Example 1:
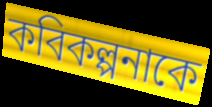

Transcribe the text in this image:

কবিকল্পনাকে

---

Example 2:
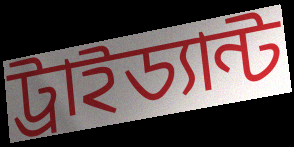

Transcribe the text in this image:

ট্রাইড্যান্ট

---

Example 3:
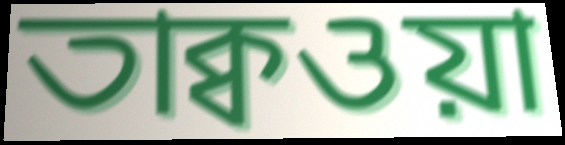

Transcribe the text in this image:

তাক্বওয়া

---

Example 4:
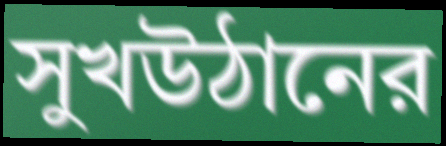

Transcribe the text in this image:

সুখউঠানের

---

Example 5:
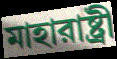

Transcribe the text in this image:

মাহারাষ্ট্রী